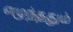
எழுந்ததும்